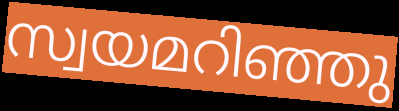
സ്വയമറിഞ്ഞു